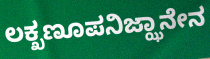
ಲಕ್ಖಣೂಪನಿಜ್ಝಾನೇನ